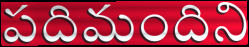
పదిమందిని